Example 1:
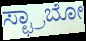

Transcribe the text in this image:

ಸ್ಟ್ರಾಬೋ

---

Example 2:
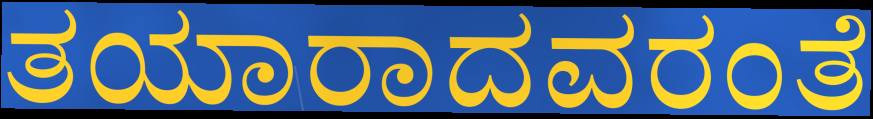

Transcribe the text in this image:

ತಯಾರಾದವರಂತೆ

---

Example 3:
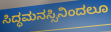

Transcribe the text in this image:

ಸಿದ್ಧಮನಸ್ಸಿನಿಂದಲೂ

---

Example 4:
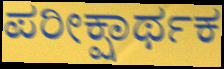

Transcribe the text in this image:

ಪರೀಕ್ಷಾರ್ಥಕ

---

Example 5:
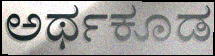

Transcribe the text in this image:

ಅರ್ಥಕೂಡ